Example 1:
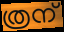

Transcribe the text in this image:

ത്രന്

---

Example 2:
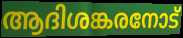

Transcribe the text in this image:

ആദിശങ്കരനോട്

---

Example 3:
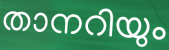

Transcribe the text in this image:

താനറിയും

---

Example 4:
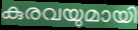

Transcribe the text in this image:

കുരവയുമായി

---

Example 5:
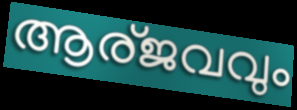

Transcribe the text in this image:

ആര്ജവവും